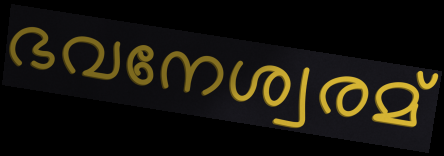
ഭവനേശ്വരമ്